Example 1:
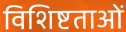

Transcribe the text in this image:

विशिष्टताओं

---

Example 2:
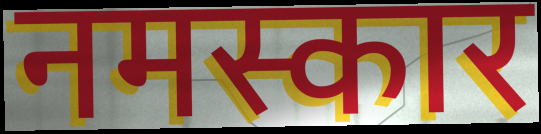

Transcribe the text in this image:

नमस्कार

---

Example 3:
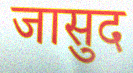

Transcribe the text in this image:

जासुद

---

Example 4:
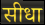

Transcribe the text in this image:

सीधा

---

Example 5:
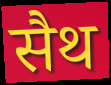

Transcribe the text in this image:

सैथ